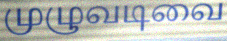
முழுவடிவை